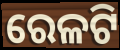
ରେଳଟି